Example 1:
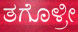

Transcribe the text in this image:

ತಗೊಳ್ರೀ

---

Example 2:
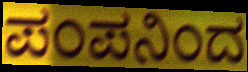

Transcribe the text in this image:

ಪಂಪನಿಂದ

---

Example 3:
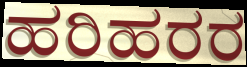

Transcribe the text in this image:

ಹರಿಹರರ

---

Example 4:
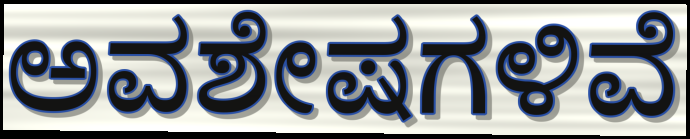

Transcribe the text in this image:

ಅವಶೇಷಗಳಿವೆ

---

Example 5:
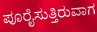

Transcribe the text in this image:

ಪೂರೈಸುತ್ತಿರುವಾಗ